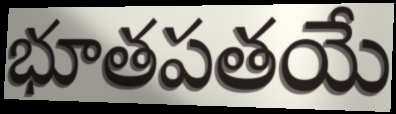
భూతపతయే